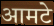
आमटे